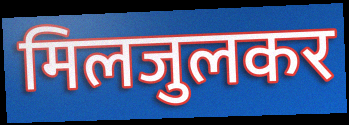
मिलजुलकर